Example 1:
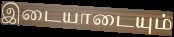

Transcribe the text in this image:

இடையாடையும்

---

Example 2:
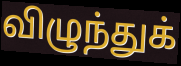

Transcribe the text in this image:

விழுந்துக்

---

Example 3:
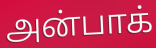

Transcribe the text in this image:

அன்பாக்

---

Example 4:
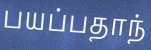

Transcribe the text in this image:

பயப்பதாந்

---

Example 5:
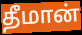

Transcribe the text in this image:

தீமான்